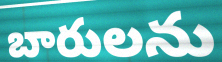
బారులను